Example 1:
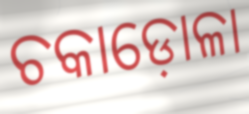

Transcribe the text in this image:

ଚକାଡ଼ୋଳା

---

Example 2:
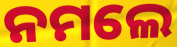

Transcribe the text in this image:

ନମଲେ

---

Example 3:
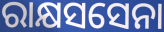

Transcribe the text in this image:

ରାକ୍ଷସସେନା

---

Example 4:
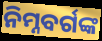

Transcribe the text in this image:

ନିମ୍ନବର୍ଗଙ୍କ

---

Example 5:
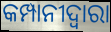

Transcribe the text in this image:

କମ୍ପାନୀଦ୍ୱାରା